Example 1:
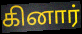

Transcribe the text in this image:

கினார்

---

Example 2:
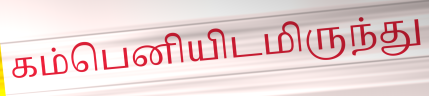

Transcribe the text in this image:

கம்பெனியிடமிருந்து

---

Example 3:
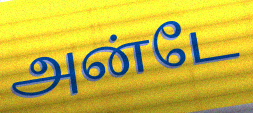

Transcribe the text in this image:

அன்டே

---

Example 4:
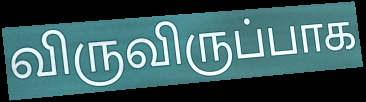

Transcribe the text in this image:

விருவிருப்பாக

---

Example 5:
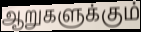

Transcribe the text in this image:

ஆறுகளுக்கும்